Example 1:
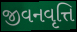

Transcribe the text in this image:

જીવનવૃત્તિ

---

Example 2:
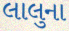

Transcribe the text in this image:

લાલુના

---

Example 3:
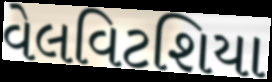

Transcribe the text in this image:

વેલવિટશિયા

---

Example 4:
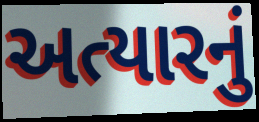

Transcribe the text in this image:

અત્યારનું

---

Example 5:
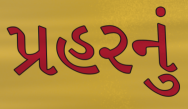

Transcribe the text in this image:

પ્રહરનું